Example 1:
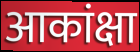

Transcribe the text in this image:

आकांक्षा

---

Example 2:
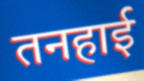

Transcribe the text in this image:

तनहाई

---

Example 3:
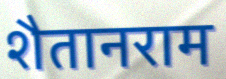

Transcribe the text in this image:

शैतानराम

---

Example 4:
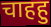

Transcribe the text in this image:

चाहहु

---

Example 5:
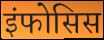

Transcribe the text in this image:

इंफोसिस